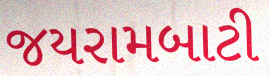
જયરામબાટી